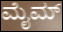
ಮೈಮ್